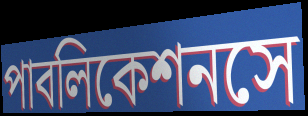
পাবলিকেশনসে